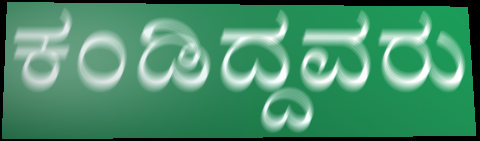
ಕಂಡಿದ್ದವರು